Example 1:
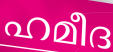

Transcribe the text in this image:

ഹമീദ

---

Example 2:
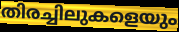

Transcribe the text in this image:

തിരച്ചിലുകളെയും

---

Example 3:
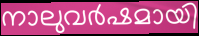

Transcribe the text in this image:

നാലുവർഷമായി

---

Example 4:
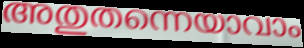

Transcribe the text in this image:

അതുതന്നെയാവാം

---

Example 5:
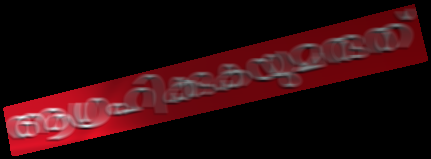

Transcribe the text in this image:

ആഗ്രഹിക്കുകയുമരുത്